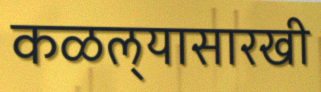
कळल्यासारखी